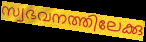
സ്വഭവനത്തിലേക്കു